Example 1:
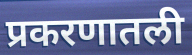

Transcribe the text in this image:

प्रकरणातली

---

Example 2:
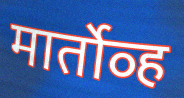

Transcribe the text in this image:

मार्तोव्ह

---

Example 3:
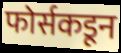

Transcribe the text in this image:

फोर्सकडून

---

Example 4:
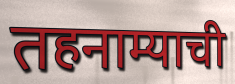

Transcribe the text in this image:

तहनाम्याची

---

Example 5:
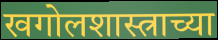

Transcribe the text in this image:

खगोलशास्त्राच्या